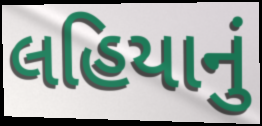
લહિયાનું